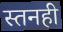
स्तनही